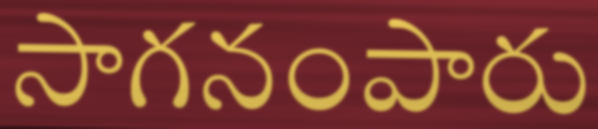
సాగనంపారు